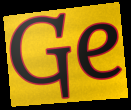
Ge